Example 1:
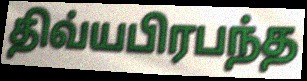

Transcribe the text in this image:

திவ்யபிரபந்த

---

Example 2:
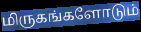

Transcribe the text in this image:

மிருகங்களோடும்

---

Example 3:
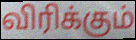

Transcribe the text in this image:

விரிக்கும்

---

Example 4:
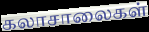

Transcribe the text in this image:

கலாசாலைகள்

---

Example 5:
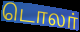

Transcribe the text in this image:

டொலர்